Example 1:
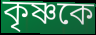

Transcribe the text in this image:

কৃষ্ণকে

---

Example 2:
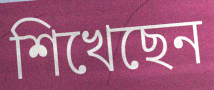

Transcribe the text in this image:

শিখেছেন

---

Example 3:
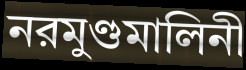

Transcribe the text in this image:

নরমুণ্ডমালিনী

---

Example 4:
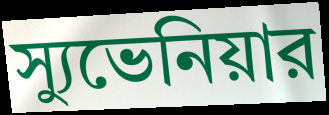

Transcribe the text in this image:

স্যুভেনিয়ার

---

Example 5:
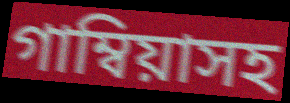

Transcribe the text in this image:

গাম্বিয়াসহ